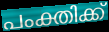
പംക്തിക്ക്